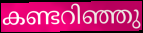
കണ്ടറിഞ്ഞു